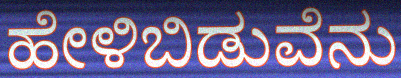
ಹೇಳಿಬಿಡುವೆನು